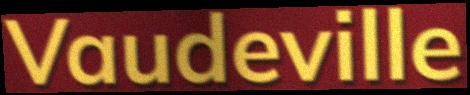
Vaudeville